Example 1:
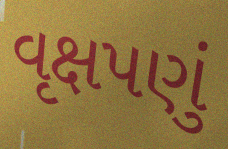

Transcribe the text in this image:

વૃક્ષપણું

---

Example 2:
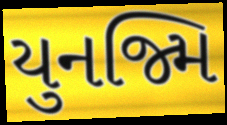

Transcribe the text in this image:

યુનજ્મિ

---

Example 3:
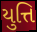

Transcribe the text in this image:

યુત્તિ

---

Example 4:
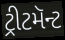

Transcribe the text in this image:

ટ્રીટમૅન્ટ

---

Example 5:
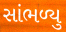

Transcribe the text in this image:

સાંભળ્યુ